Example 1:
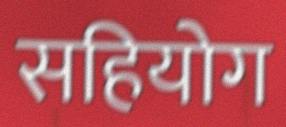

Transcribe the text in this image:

सहियोग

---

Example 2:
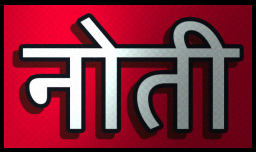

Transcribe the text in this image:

नोती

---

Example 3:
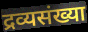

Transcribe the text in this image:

द्रव्यसंख्या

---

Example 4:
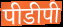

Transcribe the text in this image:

पीडीपी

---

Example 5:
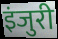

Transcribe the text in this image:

इंजुरी